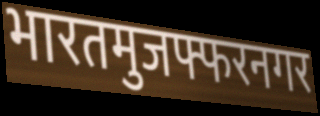
भारतमुजफ्फरनगर